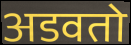
अडवतो